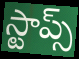
స్టాప్స్